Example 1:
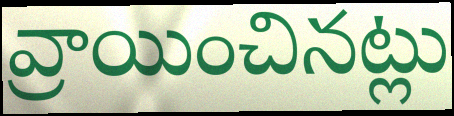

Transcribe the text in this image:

వ్రాయించినట్లు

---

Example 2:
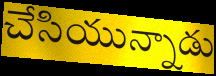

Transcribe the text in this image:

చేసియున్నాడు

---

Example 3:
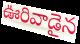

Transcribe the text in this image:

ఊరివాడైన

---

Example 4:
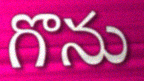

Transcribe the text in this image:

గొను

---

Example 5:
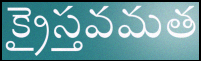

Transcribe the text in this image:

క్రైస్తవమత